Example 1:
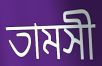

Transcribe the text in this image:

তামসী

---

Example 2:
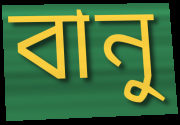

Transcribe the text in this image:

বানু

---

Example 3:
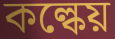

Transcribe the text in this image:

কল্কেয়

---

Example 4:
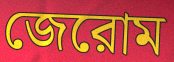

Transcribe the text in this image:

জেরোম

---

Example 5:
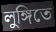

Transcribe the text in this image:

লুঙ্গিতে